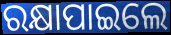
ରକ୍ଷାପାଇଲେ